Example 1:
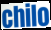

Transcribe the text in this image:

chilo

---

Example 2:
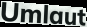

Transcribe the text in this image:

Umlaut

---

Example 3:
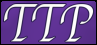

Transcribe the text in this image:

TTP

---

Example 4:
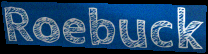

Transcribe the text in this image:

Roebuck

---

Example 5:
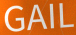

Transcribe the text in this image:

GAIL